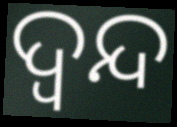
ଦ୍ଵନ୍ଦ